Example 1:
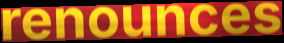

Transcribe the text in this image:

renounces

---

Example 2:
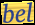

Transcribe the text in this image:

bel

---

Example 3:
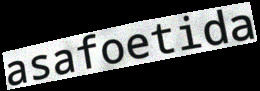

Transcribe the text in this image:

asafoetida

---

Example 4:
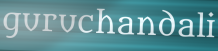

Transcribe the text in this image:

guruchandali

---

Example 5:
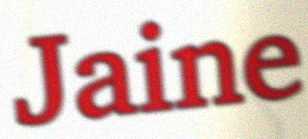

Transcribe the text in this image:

Jaine